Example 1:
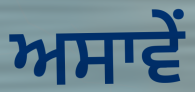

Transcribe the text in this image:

ਅਸਾਵੇਂ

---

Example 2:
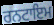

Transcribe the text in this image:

ਰਨਟਾਇਮ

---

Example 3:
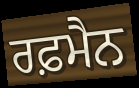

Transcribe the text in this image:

ਰਫ਼ਮੈਨ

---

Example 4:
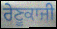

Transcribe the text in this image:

ਰੇਣੂਕਾਜੀ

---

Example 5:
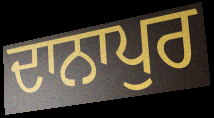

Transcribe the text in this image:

ਦਾਨਾਪੁਰ